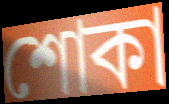
শোকা